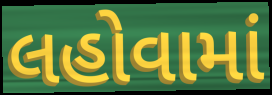
લહોવામાં